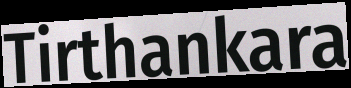
Tirthankara